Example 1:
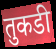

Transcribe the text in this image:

तुकडी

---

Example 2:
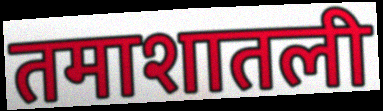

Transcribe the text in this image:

तमाशातली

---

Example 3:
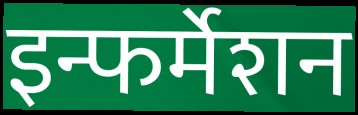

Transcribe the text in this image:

इन्फर्मेशन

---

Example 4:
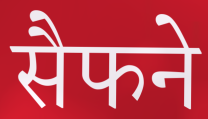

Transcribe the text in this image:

सैफने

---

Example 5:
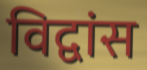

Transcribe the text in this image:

विद्वांस